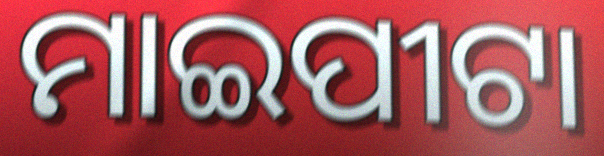
ମାଇପୀଟା